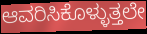
ಆವರಿಸಿಕೊಳ್ಳುತ್ತಲೇ